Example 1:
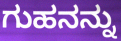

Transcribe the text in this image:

ಗುಹನನ್ನು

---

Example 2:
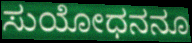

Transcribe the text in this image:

ಸುಯೋಧನನೂ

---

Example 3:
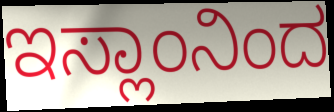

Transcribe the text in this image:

ಇಸ್ಲಾಂನಿಂದ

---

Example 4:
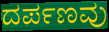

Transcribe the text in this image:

ದರ್ಪಣವು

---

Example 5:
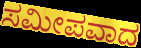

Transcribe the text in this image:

ಸಮೀಪವಾದ